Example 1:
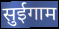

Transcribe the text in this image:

सुईगाम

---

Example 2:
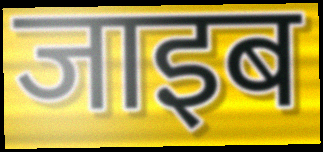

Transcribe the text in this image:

जाइब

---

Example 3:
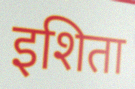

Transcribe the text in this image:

इशिता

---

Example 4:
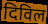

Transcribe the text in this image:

दिविल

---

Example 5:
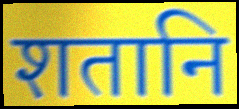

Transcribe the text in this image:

शतानि